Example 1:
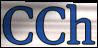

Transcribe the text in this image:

CCh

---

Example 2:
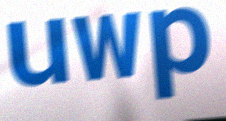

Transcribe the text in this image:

uwp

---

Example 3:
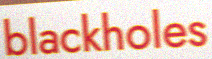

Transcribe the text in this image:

blackholes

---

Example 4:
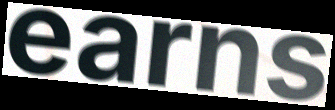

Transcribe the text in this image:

earns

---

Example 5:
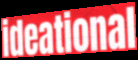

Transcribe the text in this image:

ideational